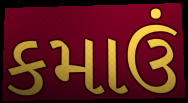
કમાઉં